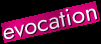
evocation